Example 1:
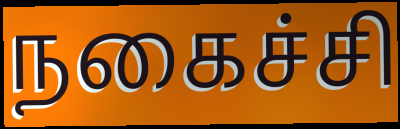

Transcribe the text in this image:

நகைச்சி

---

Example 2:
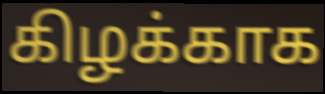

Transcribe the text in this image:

கிழக்காக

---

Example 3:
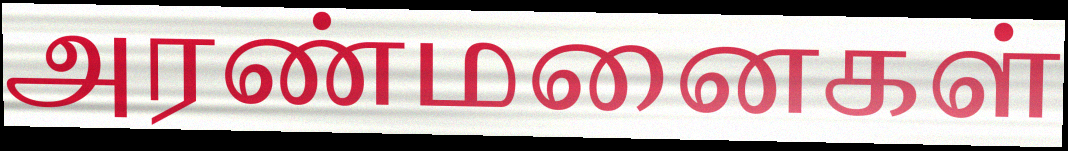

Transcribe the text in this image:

அரண்மனைகள்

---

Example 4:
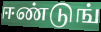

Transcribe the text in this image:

ஈண்டுங்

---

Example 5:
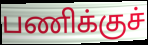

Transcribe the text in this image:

பணிக்குச்